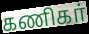
கணிகர்